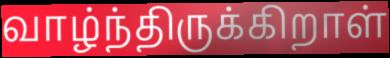
வாழ்ந்திருக்கிறாள்